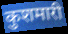
कुशमारी